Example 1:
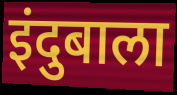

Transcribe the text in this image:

इंदुबाला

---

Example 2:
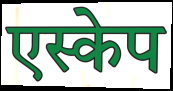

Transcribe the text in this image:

एस्केप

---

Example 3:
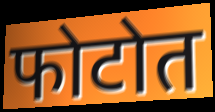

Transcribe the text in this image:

फोटोत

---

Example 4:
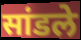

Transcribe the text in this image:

सांडले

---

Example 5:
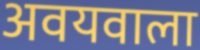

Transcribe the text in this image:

अवयवाला